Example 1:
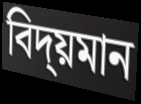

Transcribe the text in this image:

বিদ্য়মান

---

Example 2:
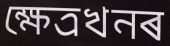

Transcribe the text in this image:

ক্ষেত্ৰখনৰ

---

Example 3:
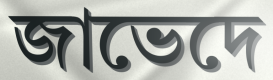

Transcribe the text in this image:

জাভেদে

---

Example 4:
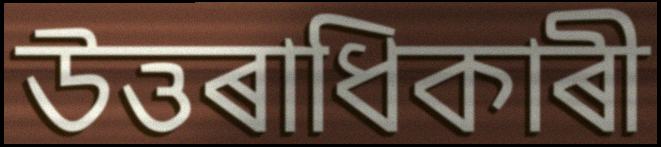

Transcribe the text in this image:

উত্তৰাধিকাৰী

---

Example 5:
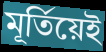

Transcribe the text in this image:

মূৰ্তিয়েই